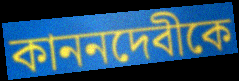
কাননদেবীকে